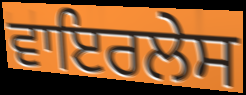
ਵਾਇਰਲੇਸ